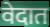
वेदात